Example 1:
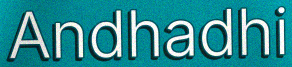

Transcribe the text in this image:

Andhadhi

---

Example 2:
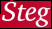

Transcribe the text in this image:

Steg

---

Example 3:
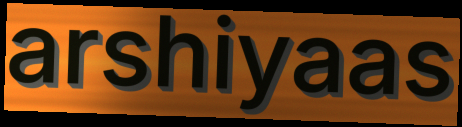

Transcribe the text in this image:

arshiyaas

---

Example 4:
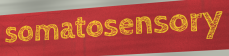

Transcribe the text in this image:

somatosensory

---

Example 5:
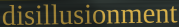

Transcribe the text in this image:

disillusionment